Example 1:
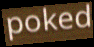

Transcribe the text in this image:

poked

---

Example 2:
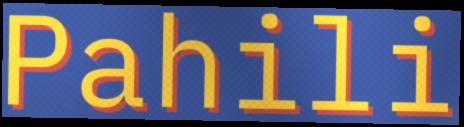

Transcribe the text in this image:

Pahili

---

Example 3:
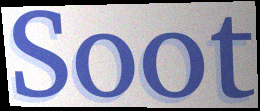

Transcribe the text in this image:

Soot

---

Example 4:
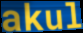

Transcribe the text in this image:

akul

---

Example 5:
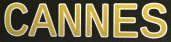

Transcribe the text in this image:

CANNES